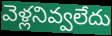
వెళ్లనివ్వలేదు